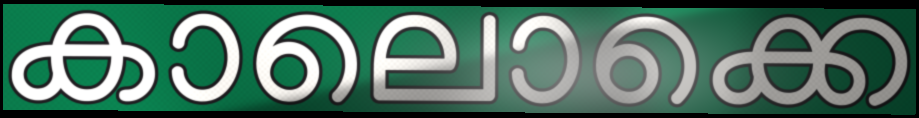
കാലൊക്കെ